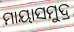
ମାୟାସମୁଦ୍ର